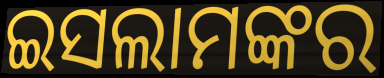
ଇସଲାମଙ୍କର